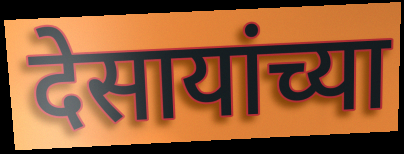
देसायांच्या